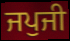
ਜਪੁਜੀ